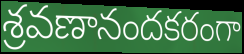
శ్రవణానందకరంగా